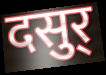
दसुर्